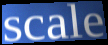
scale